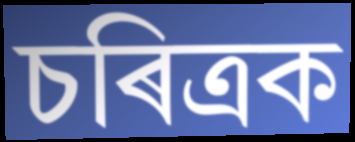
চৰিত্ৰক